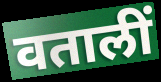
वतालीं